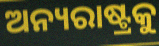
ଅନ୍ୟରାଷ୍ଟ୍ରକୁ